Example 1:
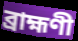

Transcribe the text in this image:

ব্ৰাহ্মণী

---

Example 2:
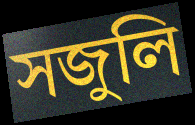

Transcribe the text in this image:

সজুলি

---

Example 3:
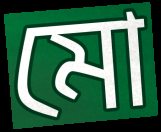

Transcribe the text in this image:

মো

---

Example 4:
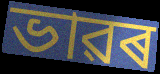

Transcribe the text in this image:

ভাৱৰ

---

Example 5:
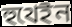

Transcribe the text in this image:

হুথেইন